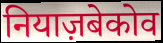
नियाज़बेकोव